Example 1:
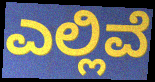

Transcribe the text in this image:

ಎಲ್ಲಿವೆ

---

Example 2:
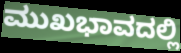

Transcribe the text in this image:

ಮುಖಭಾವದಲ್ಲಿ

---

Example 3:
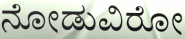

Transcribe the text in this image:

ನೋಡುವಿರೋ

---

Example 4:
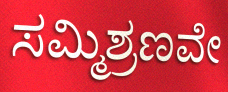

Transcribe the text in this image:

ಸಮ್ಮಿಶ್ರಣವೇ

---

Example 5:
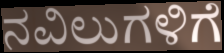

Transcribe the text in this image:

ನವಿಲುಗಳಿಗೆ